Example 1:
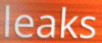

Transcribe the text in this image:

leaks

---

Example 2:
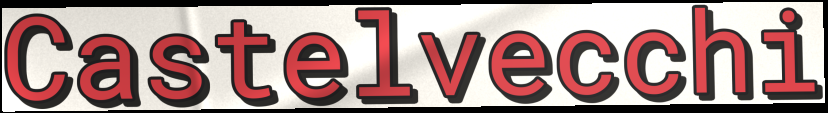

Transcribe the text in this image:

Castelvecchi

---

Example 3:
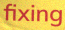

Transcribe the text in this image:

fixing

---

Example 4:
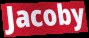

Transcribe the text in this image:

Jacoby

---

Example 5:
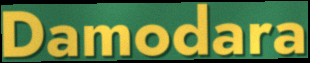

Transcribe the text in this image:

Damodara